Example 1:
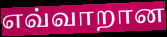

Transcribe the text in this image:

எவ்வாறான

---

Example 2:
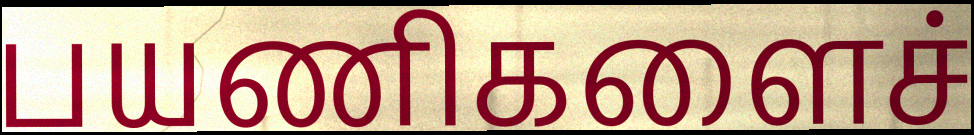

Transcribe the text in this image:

பயணிகளைச்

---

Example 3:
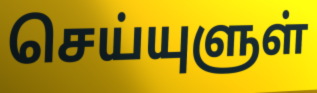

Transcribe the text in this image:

செய்யுளுள்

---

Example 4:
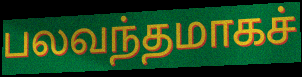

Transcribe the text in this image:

பலவந்தமாகச்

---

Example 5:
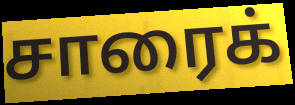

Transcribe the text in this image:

சாரைக்